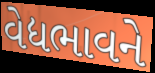
વેદ્યભાવને